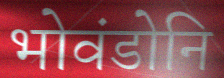
भोवंडोनि